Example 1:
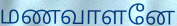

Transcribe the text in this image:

மணவாளனே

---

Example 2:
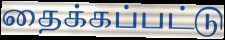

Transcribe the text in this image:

தைக்கப்பட்டு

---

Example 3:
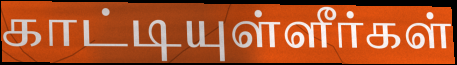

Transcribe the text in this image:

காட்டியுள்ளீர்கள்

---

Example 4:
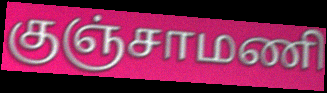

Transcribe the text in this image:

குஞ்சாமணி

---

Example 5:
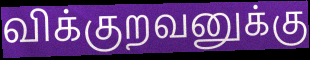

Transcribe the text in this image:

விக்குறவனுக்கு